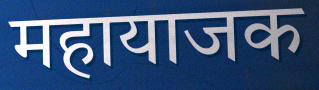
महायाजक